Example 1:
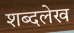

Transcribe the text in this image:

शब्दलेख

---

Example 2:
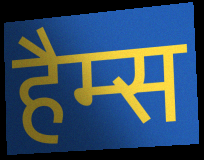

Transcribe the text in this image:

हैम्स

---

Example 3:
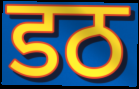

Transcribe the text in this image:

डठ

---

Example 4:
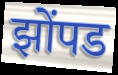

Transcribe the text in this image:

झोंपड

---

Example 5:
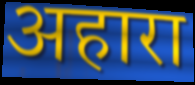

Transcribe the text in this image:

अहारा